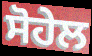
ਸੋਹੇਲ